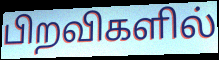
பிறவிகளில்